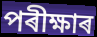
পৰীক্ষাৰ